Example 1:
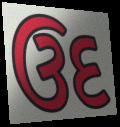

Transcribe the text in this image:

ઉદ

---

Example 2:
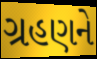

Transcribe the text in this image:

ગ્રહણને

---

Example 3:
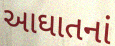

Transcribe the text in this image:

આઘાતનાં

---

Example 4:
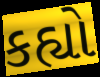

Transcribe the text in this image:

કહ્યો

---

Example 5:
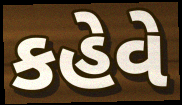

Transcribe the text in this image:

કહેવે